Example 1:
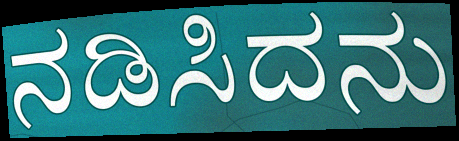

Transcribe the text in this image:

ನಡಿಸಿದನು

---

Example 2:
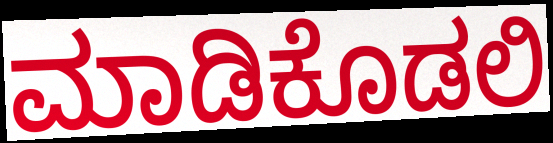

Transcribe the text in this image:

ಮಾಡಿಕೊಡಲಿ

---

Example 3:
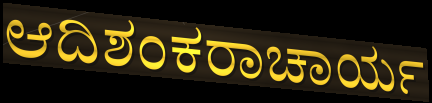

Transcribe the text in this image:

ಆದಿಶಂಕರಾಚಾರ್ಯ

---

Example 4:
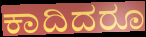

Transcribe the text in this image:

ಕಾದಿದರೂ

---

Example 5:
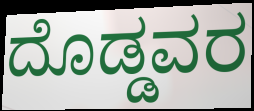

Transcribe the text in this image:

ದೊಡ್ಡವರ